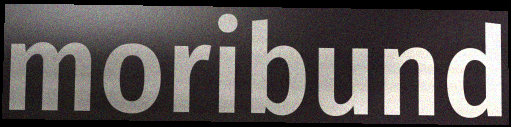
moribund